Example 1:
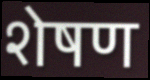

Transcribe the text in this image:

शेषण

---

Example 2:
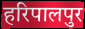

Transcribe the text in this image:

हरिपालपुर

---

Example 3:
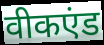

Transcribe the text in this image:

वीकएंड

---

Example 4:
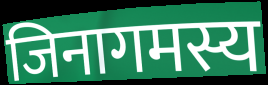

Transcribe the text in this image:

जिनागमस्य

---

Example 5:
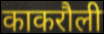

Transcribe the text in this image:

काकरौली